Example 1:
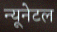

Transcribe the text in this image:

न्यूनेटल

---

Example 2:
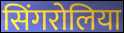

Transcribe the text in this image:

सिंगरोलिया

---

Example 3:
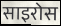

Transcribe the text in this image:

साइरोस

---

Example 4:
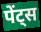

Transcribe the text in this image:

पेंट्स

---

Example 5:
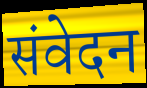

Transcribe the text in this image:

संवेदन